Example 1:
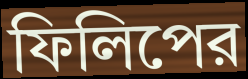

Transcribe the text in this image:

ফিলিপের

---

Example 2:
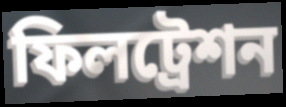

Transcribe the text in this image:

ফিলট্রেশন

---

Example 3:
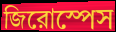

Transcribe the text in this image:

জিরোস্পেস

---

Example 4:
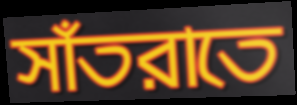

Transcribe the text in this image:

সাঁতরাতে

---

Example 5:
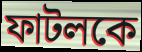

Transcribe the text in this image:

ফাটলকে